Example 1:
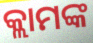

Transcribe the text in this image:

କ୍ଲାମଙ୍କ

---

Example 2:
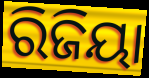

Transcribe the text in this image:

ରିଜିୟା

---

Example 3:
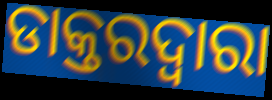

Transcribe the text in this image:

ଡାକ୍ତରଦ୍ୱାରା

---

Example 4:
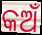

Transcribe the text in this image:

କଅଁ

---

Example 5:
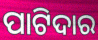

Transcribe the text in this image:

ପାଟିଦାର